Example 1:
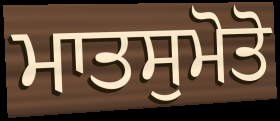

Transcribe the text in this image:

ਮਾਤਸੁਮੋਤੋ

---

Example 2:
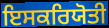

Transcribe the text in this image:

ਇਸਕਰਿਯੋਤੀ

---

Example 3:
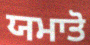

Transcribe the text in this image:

ਯਮਾਤੋ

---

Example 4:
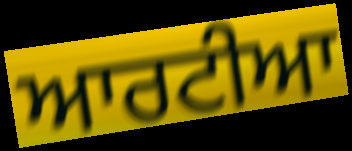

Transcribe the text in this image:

ਆਰਟੀਆ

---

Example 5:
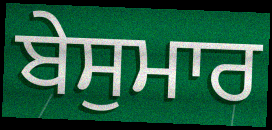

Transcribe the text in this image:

ਬੇਸੁਮਾਰ